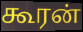
கூரன்